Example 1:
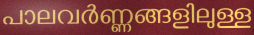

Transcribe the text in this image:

പാലവർണ്ണങ്ങളിലുള്ള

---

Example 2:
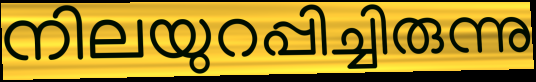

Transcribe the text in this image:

നിലയുറപ്പിച്ചിരുന്നു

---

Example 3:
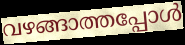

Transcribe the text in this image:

വഴങ്ങാത്തപ്പോൾ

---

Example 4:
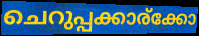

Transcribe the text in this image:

ചെറുപ്പക്കാര്ക്കോ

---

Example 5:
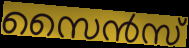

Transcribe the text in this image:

സൈൻസ്